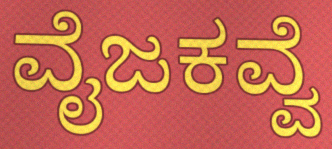
ವೈಜಕವ್ವೆ